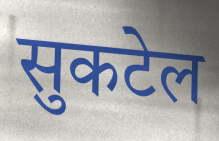
सुकटेल